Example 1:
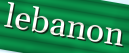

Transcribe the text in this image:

lebanon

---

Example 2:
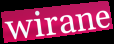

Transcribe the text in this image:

wirane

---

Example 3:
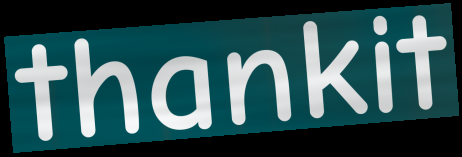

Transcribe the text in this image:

thankit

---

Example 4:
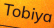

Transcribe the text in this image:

Tobiya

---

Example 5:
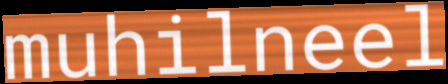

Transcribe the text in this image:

muhilneel